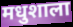
मधुशाला